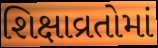
શિક્ષાવ્રતોમાં